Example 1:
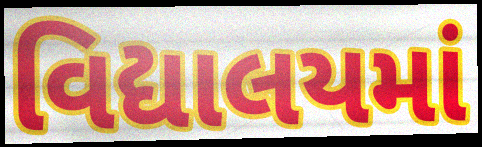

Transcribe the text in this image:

વિદ્યાલયમાં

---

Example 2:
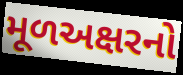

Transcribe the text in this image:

મૂળઅક્ષરનો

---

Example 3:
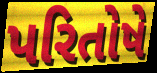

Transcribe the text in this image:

પરિતોષે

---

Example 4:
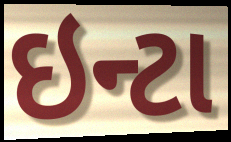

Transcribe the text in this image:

ઇન્ટા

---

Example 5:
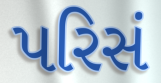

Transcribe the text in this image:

પરિસં